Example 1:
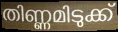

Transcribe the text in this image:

തിണ്ണമിടുക്ക്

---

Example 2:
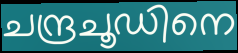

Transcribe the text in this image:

ചന്ദ്രചൂഡിനെ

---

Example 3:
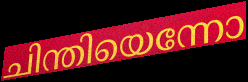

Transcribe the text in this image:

ചിന്തിയെന്നോ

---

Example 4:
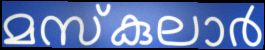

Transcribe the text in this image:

മസ്കുലാർ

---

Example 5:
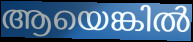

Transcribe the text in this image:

ആയെങ്കിൽ